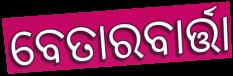
ବେତାରବାର୍ତ୍ତା